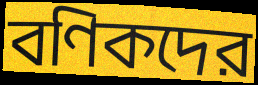
বণিকদের